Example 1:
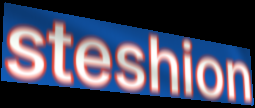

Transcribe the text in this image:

steshion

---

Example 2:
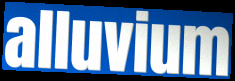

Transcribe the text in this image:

alluvium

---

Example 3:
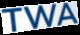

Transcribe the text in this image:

TWA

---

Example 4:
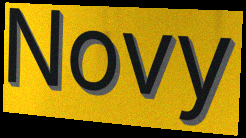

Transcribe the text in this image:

Novy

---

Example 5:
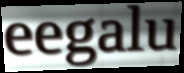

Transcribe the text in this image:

eegalu